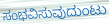
ಸಂಭವಿಸುವುದುಂಟು